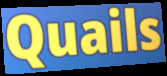
Quails